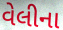
વેલીના